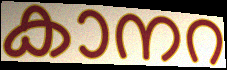
കാനറ